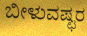
ಬೀಳುವಷ್ಟರ